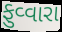
ફુવ્વારા